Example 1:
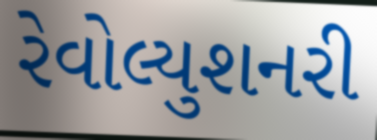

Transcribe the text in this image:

રેવોલ્યુશનરી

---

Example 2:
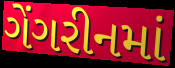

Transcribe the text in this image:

ગેંગરીનમાં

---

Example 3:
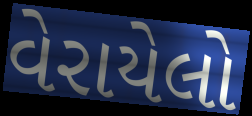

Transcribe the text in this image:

વેરાયેલો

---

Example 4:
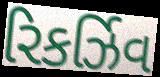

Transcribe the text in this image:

રિકર્ઝિવ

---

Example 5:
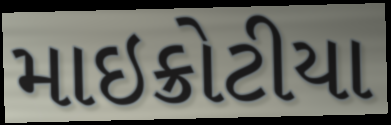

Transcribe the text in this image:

માઇક્રોટીયા